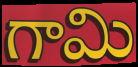
గామి